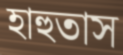
হাহুতাস